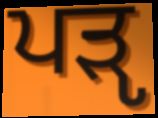
ਪੜੵ